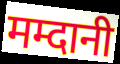
मम्दानी